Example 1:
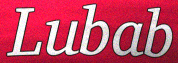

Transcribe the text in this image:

Lubab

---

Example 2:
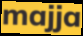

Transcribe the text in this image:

majja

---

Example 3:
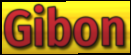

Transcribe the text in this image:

Gibon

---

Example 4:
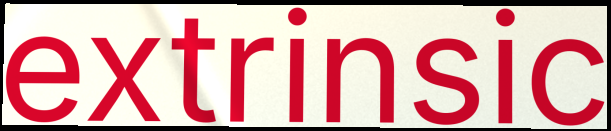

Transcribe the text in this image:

extrinsic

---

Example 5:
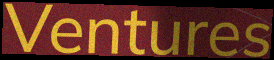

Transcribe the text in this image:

Ventures